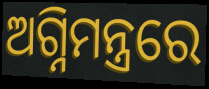
ଅଗ୍ନିମନ୍ତ୍ରରେ